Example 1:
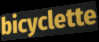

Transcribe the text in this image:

bicyclette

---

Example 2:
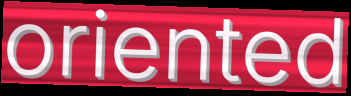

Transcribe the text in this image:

oriented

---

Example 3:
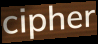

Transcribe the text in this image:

cipher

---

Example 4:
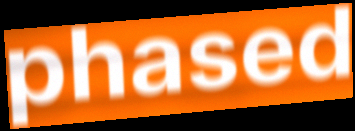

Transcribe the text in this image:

phased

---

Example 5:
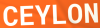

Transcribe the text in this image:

CEYLON